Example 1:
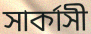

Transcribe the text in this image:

সার্কাসী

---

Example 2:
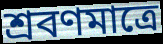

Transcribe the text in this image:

শ্রবণমাত্রে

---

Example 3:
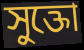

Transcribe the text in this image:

সুক্তো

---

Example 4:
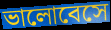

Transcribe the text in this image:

ভালোবেসে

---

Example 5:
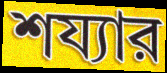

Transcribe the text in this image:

শয্যার